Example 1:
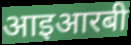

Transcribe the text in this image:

आइआरबी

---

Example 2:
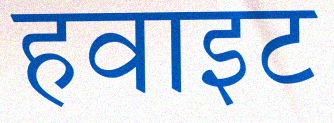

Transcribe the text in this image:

हवाइट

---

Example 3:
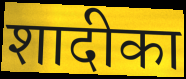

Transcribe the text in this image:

शादीका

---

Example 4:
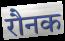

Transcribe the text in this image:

रौनक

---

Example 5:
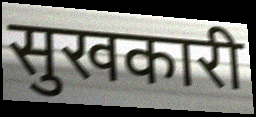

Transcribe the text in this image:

सुखकारी